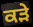
ਕੜੇ